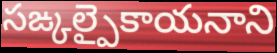
సఙ్కల్పైకాయనాని